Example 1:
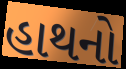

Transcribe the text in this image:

હાથનો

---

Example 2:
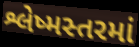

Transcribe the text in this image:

શ્લેષ્મસ્તરમાં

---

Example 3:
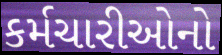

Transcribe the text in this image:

કર્મચારીઓનો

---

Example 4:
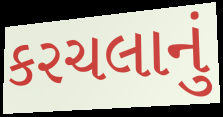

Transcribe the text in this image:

કરચલાનું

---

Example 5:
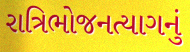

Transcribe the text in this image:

રાત્રિભોજનત્યાગનું